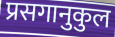
प्रसगानुकुल